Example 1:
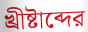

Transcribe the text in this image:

খ্রীষ্টাব্দের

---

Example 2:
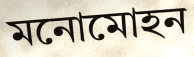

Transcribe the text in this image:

মনোমোহন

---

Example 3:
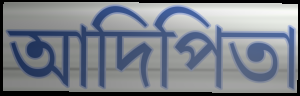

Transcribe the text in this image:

আদিপিতা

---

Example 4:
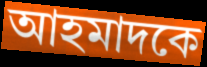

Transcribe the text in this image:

আহমাদকে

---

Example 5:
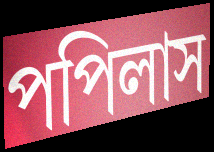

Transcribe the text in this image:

পপিলাস